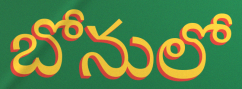
బోనులో